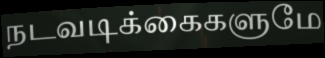
நடவடிக்கைகளுமே